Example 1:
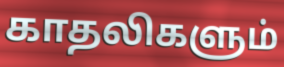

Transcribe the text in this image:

காதலிகளும்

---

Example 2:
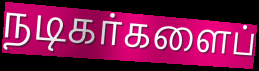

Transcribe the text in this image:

நடிகர்களைப்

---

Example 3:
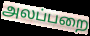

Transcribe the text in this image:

அலப்பறை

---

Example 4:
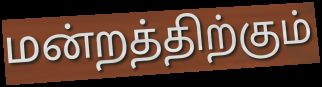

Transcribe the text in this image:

மன்றத்திற்கும்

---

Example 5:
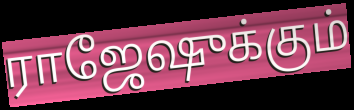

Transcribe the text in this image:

ராஜேஷுக்கும்